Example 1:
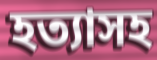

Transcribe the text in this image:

হত্যাসহ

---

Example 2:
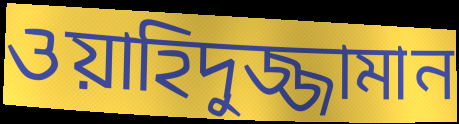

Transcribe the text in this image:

ওয়াহিদুজ্জামান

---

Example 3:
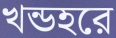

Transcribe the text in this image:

খন্ডহরে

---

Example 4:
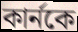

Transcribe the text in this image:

কার্নকে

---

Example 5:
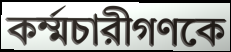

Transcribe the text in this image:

কর্ম্মচারীগণকে